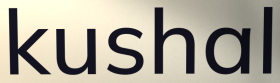
kushal